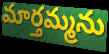
మార్తమ్మను